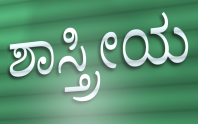
ಶಾಸ್ತ್ರೀಯ